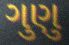
ગુણુ